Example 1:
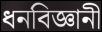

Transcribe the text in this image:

ধনবিজ্ঞানী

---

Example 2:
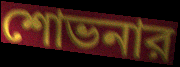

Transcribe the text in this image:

শোভনার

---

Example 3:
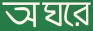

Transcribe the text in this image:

অঘরে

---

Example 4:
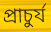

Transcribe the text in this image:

প্রাচুর্য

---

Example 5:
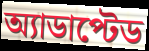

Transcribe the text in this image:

অ্যাডাপ্টেড